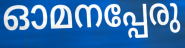
ഓമനപ്പേരു